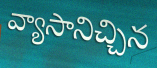
వ్యాసానిచ్చిన